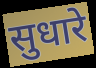
सुधारे